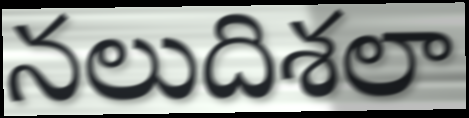
నలుదిశలా